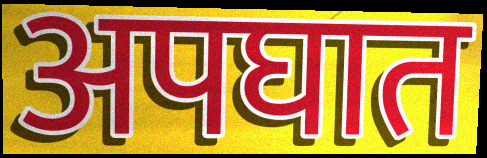
अपघात